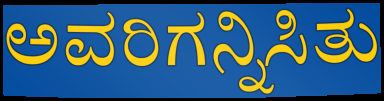
ಅವರಿಗನ್ನಿಸಿತು